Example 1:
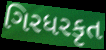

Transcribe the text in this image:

ગિરધરકૃત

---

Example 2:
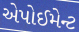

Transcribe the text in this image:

એપોઈમેન્ટ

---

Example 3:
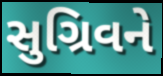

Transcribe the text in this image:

સુગ્રિવને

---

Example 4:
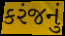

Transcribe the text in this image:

કરંજનું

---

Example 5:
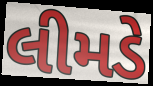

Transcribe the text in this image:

લીમડે